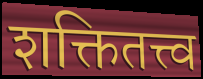
शक्तितत्त्व